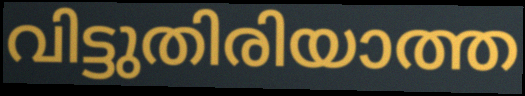
വിട്ടുതിരിയാത്ത